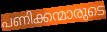
പണിക്കന്മാരുടെ